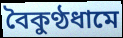
বৈকুণ্ঠধামে